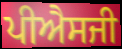
ਪੀਐਸਜੀ